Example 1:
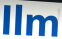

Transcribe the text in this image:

Ilm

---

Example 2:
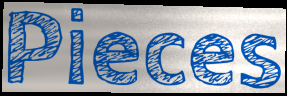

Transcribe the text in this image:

Pieces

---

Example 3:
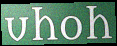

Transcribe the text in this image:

uhoh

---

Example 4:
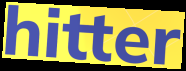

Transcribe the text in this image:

hitter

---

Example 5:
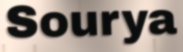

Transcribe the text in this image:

Sourya